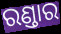
ରଣ୍ଡାର